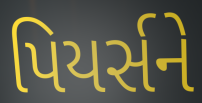
પિયર્સને